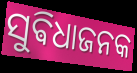
ସୁଵିଧାଜନକ